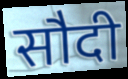
सौदी